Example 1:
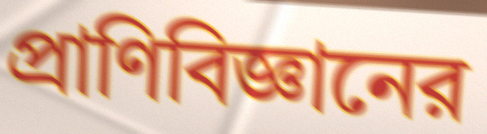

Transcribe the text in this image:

প্রাণিবিজ্ঞানের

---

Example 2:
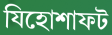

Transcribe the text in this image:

যিহোশাফট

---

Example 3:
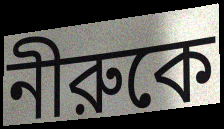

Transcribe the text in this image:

নীরুকে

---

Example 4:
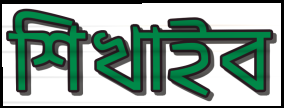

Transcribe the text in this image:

শিখাইব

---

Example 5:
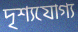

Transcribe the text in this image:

দৃশ্যযোগ্য